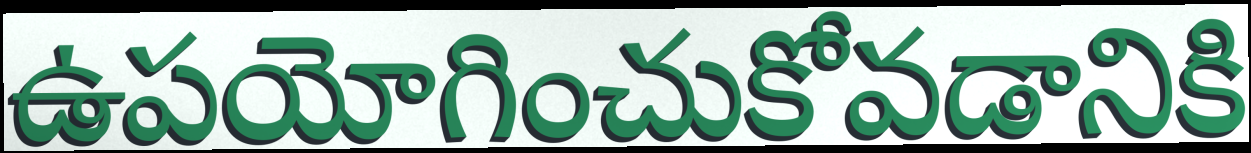
ఉపయోగించుకోవడానికి